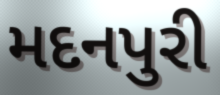
મદનપુરી